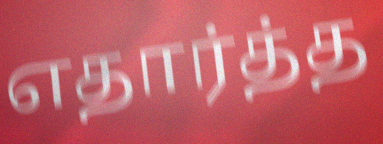
எதார்த்த